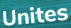
Unites